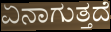
ಏನಾಗುತ್ತದೆ